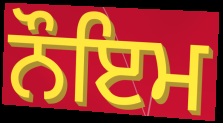
ਨੌਇਮ